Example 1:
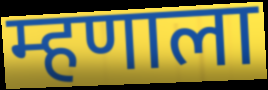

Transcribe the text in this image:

म्हणाला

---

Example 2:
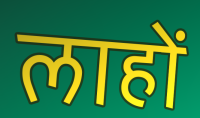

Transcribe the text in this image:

लाहों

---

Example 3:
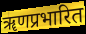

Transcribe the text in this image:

ॠणप्रभारित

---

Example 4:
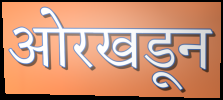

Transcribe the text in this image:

ओरखडून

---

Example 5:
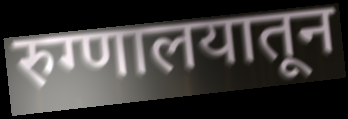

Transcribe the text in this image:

रुग्णालयातून